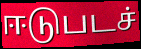
ஈடுபடச்